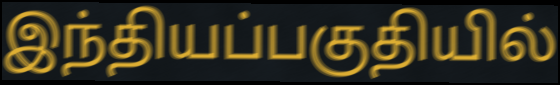
இந்தியப்பகுதியில்